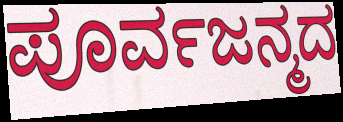
ಪೂರ್ವಜನ್ಮದ